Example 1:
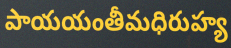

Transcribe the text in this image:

పాయయంతీమధిరుహ్య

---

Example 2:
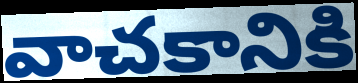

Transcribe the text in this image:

వాచకానికి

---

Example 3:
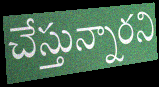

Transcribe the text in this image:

చేస్తున్నారని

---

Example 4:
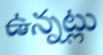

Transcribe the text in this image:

ఉన్నట్లు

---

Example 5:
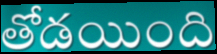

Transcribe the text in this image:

తోడయింది